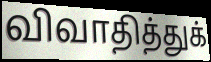
விவாதித்துக்